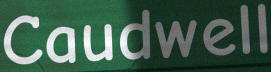
Caudwell